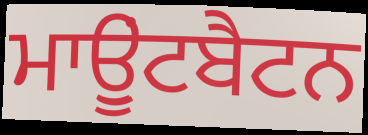
ਮਾਉੂਂਟਬੈਟਨ